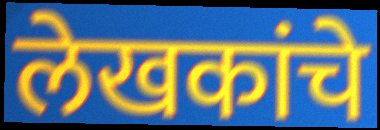
लेखकांचे